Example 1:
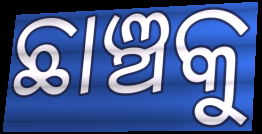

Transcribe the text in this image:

ଛାଞ୍ଚକୁ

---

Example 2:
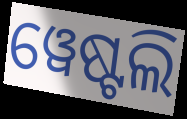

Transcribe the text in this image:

ୱେଷ୍ଟଲି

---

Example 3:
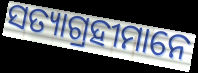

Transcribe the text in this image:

ସତ୍ୟାଗ୍ରହୀମାନେ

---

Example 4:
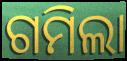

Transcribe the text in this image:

ଗମିଲା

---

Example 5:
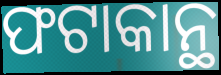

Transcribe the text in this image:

ଫଟାକାନ୍ଥ